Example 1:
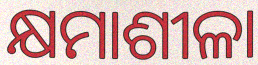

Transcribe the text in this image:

କ୍ଷମାଶୀଳା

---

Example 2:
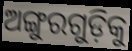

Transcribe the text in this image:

ଅଙ୍ଗୁରଗୁଡ଼ିକୁ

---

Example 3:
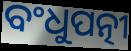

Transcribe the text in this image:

ବଂଧୁପତ୍ନୀ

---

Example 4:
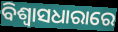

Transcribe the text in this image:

ବିଶ୍ଵାସଧାରାରେ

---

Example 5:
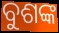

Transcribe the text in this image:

ବୁଶଙ୍କ